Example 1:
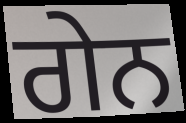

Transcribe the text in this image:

ਗੇਨ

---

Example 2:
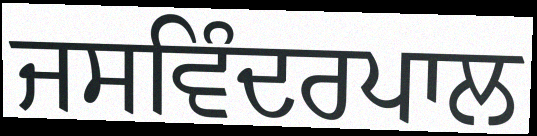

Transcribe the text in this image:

ਜਸਵਿੰਦਰਪਾਲ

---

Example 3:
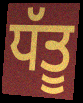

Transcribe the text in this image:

ਧੱਤੂ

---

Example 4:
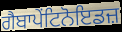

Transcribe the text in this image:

ਗੈਬਾਪੇਂਟਿਨੋਇਡਜ਼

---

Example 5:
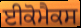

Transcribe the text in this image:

ਈਕੋਮੈਕਸ